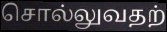
சொல்லுவதற்